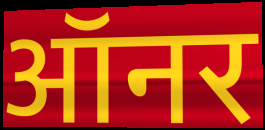
ऑनर